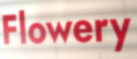
Flowery